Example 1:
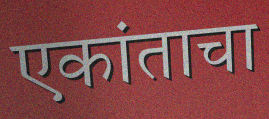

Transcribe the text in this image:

एकांताचा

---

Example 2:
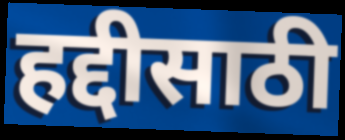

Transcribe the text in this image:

हद्दीसाठी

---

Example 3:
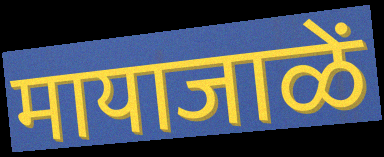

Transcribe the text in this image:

मायाजाळें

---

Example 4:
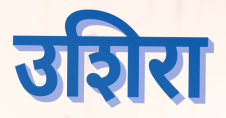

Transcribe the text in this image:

उशिरा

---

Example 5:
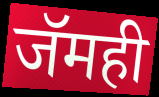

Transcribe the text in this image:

जॅमही